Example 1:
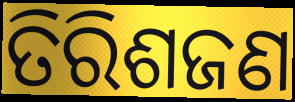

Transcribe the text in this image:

ତିରିଶଜଣ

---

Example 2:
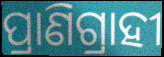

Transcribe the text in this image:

ପ୍ରାଣିଗ୍ରାହୀ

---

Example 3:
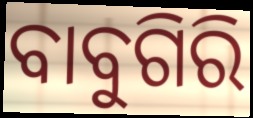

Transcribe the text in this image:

ବାବୁଗିରି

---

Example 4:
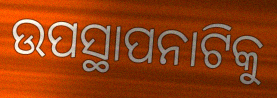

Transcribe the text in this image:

ଉପସ୍ଥାପନାଟିକୁ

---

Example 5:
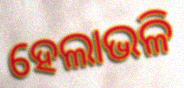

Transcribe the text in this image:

ହେଲାଭଳି